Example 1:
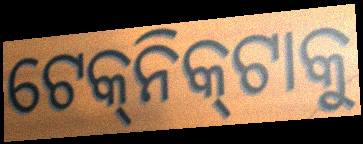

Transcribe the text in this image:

ଟେକ୍‌ନିକ୍‌ଟାକୁ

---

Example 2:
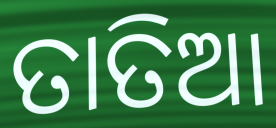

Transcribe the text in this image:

ତାତିଆ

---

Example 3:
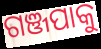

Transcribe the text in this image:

ଗଞ୍ଜପାକୁ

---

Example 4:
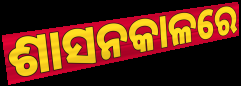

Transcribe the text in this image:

ଶାସନକାଳରେ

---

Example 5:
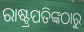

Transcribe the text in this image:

ରାଷ୍ଟ୍ରପତିଙ୍କଠାରୁ